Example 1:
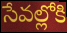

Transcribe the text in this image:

సేవల్లోకి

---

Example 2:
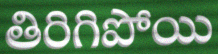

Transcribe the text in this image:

తిరిగిపోయి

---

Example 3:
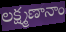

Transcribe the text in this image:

లక్ష్మణానాం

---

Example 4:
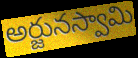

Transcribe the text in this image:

అర్జునస్వామి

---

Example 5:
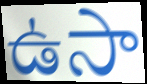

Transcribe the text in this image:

ఉసా